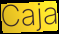
Caja